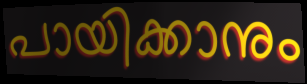
പായിക്കാനും